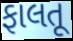
ફાલતૂ